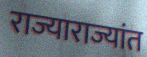
राज्याराज्यांत